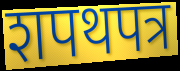
शपथपत्र